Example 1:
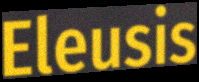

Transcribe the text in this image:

Eleusis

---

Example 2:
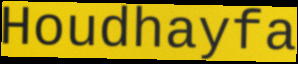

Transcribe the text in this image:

Houdhayfa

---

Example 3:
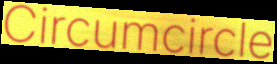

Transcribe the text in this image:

Circumcircle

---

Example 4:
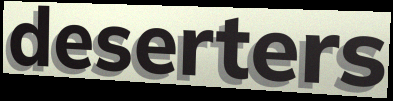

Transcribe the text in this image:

deserters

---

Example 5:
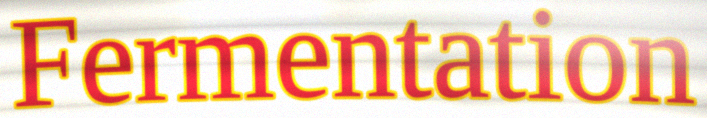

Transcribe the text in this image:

Fermentation